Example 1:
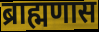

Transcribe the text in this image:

ब्राह्मणास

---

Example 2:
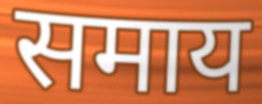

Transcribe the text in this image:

समाय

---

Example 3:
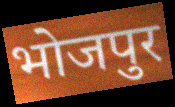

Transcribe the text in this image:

भोजपुर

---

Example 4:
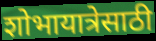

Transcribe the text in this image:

शोभायात्रेसाठी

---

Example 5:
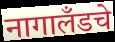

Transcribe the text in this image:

नागालँडचे